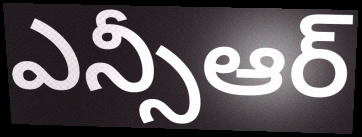
ఎన్సీఆర్